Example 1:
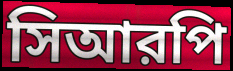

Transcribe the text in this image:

সিআরপি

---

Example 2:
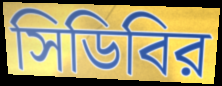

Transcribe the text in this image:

সিডিবির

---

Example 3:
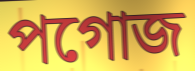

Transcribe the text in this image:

পগোজ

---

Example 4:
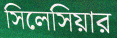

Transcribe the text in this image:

সিলেসিয়ার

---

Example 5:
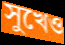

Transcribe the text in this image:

সুখেও